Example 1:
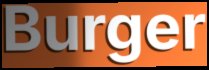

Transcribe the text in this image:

Burger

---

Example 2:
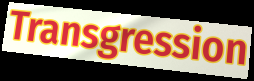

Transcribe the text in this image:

Transgression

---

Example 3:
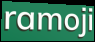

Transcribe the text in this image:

ramoji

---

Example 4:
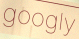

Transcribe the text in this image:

googly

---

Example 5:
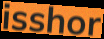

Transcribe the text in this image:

isshor